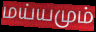
மய்யமும்